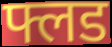
फ्लड